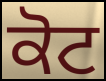
ਕੋਟ